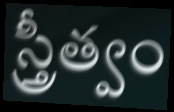
స్త్రీత్వం